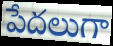
పేదలుగా